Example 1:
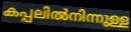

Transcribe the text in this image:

കപ്പലിൽനിന്നുള്ള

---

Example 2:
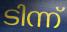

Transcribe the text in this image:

ടിന്ന്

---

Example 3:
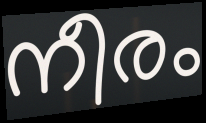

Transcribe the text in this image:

നീരം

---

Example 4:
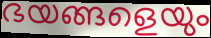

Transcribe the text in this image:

ഭയങ്ങളെയും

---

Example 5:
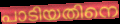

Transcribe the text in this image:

പാടിയതിനെ